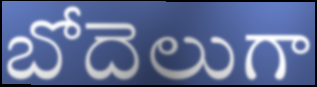
బోదెలుగా